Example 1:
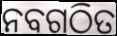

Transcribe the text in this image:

ନବଗଠିତ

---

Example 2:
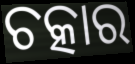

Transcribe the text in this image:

ଚତ୍କାର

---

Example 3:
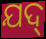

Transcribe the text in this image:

ଯଦ୍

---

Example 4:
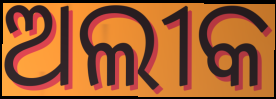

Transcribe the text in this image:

ଅଲୀକ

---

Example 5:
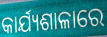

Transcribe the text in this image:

କାର୍ଯ୍ୟଶାଳାରେ